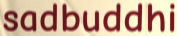
sadbuddhi